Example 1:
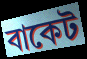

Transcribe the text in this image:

বাকেট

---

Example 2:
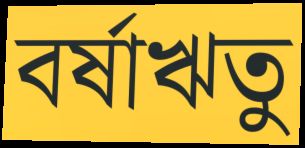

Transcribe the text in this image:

বর্ষাঋতু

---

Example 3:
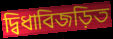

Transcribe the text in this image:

দ্বিধাবিজড়িত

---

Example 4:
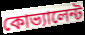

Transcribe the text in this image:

কোভ্যালেন্ট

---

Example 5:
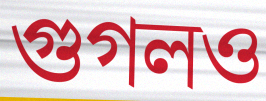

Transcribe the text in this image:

গুগলও